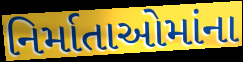
નિર્માતાઓમાંના